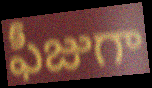
ఫీజుగా